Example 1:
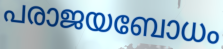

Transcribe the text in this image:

പരാജയബോധം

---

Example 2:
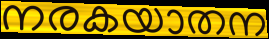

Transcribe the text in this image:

നരകയാതന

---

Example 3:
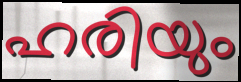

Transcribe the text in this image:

ഹരിയും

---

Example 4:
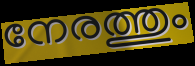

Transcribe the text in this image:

നേരത്തും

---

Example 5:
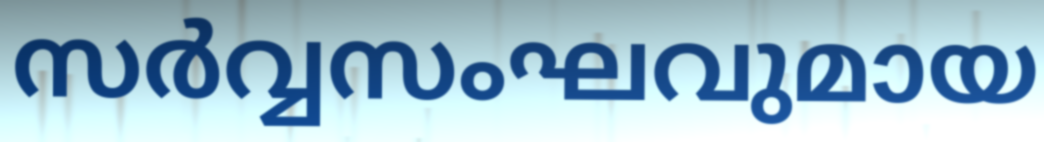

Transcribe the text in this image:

സർവ്വസംഘവുമായ